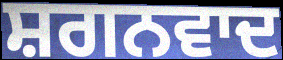
ਸ਼ਗਨਵਾਦ